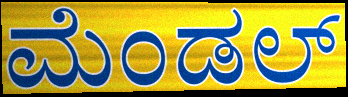
ಮೆಂಡಲ್